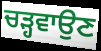
ਚੜ੍ਹਵਾਉਣ